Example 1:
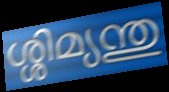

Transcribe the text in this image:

ശ്ശിമ്യന്തു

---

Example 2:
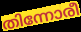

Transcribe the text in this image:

തിന്നോരീ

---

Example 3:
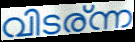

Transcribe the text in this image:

വിടര്ന്ന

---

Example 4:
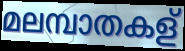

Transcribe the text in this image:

മലമ്പാതകള്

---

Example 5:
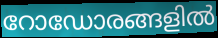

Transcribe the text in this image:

റോഡോരങ്ങളിൽ